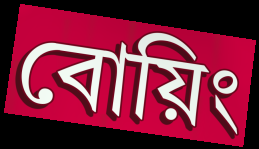
বোয়িং